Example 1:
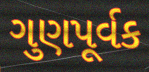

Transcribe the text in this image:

ગુણપૂર્વક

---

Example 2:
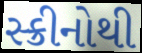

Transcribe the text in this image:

સ્ક્રીનોથી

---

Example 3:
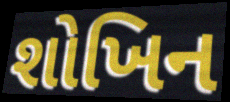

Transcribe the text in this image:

શોખિન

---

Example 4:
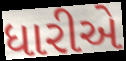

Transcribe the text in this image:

ધારીએ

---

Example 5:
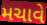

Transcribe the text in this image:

મચાવે